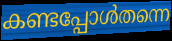
കണ്ടപ്പോൾതന്നെ